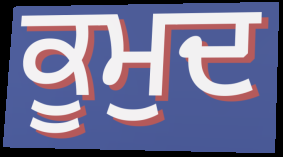
ਕੂਮੁਦ